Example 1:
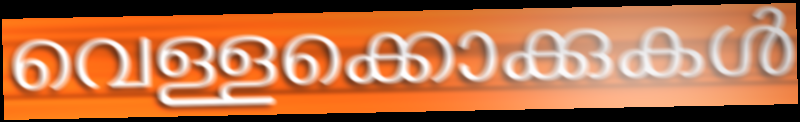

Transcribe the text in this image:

വെള്ളക്കൊക്കുകൾ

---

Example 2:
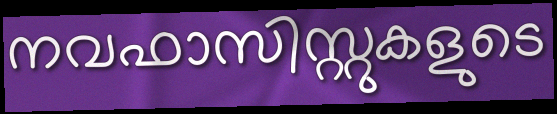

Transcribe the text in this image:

നവഫാസിസ്റ്റുകളുടെ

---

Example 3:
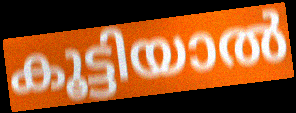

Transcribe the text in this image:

കൂട്ടിയാൽ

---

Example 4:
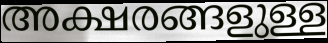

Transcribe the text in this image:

അക്ഷരങ്ങളുള്ള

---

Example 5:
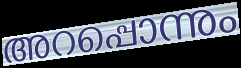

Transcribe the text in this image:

അറപ്പൊന്നും